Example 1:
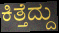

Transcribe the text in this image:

ಕಿತ್ತೆದ್ದು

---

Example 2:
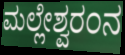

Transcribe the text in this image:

ಮಲ್ಲೇಶ್ವರಂನ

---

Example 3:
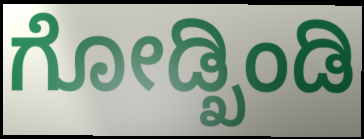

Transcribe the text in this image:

ಗೋಡ್ಖಿಂಡಿ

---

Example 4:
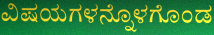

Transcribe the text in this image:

ವಿಷಯಗಳನ್ನೊಳಗೊಂಡ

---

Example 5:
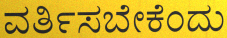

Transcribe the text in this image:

ವರ್ತಿಸಬೇಕೆಂದು